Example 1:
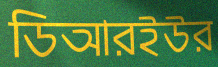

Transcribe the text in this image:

ডিআরইউর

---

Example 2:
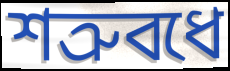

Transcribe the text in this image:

শত্রুবধে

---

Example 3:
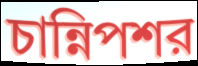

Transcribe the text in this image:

চান্নিপশর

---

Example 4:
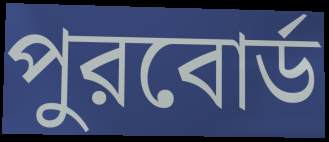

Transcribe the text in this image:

পুরবোর্ড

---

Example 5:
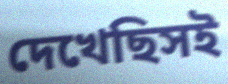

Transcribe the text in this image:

দেখেছিসই